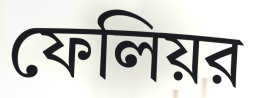
ফেলিয়র